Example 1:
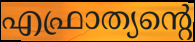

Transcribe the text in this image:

എഫ്രാത്യന്റെ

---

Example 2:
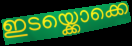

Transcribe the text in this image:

ഇടയ്ക്കൊക്കെ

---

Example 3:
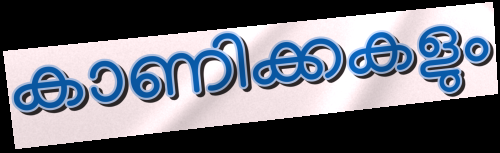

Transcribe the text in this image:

കാണിക്കകളും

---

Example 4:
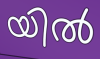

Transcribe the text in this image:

യിൽ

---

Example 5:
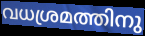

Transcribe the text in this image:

വധശ്രമത്തിനു